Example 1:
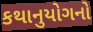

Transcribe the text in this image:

કથાનુયોગનો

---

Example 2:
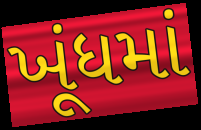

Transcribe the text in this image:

ખૂંધમાં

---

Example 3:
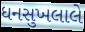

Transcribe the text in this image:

ધનસુખલાલે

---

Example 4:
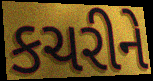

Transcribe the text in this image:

કચરીને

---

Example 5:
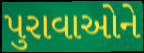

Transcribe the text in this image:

પુરાવાઓને